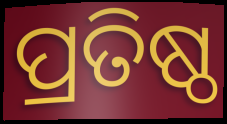
ପ୍ରତିଷ୍ଠ